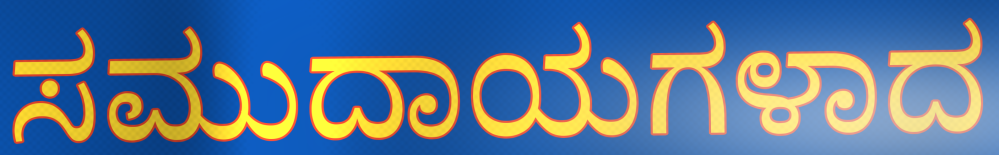
ಸಮುದಾಯಗಳಾದ